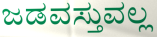
ಜಡವಸ್ತುವಲ್ಲ